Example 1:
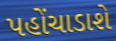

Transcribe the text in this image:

પહોંચાડાશે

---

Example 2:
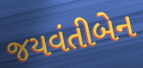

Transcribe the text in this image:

જયવંતીબેન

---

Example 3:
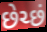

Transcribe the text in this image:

છેચ્છં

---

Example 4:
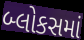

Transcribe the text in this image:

બ્લોકસમાં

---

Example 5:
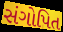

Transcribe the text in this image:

સંગોપિત